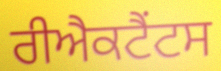
ਰੀਐਕਟੈਂਟਸ